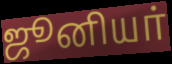
ஜூனியர்